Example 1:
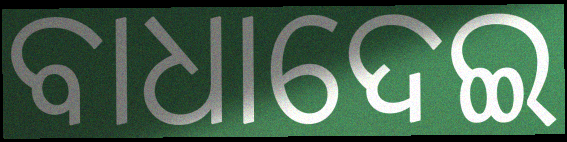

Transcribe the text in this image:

ବାଧାଦେଇ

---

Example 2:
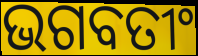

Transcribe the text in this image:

ଭଗବତୀଂ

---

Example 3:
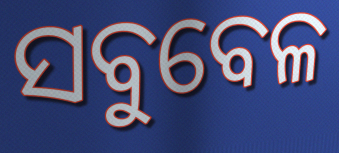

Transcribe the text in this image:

ସବୁବେଳ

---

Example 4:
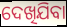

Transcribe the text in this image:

ଦେଖିଯିବା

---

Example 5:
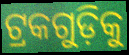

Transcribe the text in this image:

ଟ୍ରକଗୁଡ଼ିକୁ